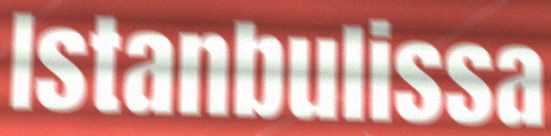
Istanbulissa